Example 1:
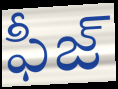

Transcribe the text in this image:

ఫీజ్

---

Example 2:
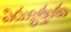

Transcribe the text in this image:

విద్యుత్తుకు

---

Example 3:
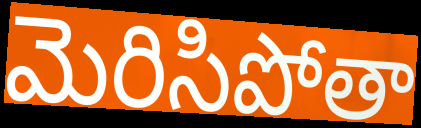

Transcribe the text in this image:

మెరిసిపోతా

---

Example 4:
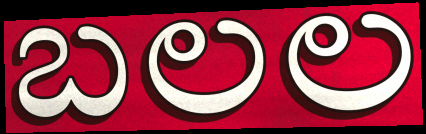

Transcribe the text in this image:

బలల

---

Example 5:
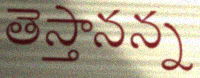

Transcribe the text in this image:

తెస్తానన్న